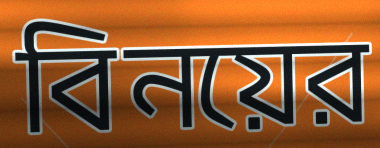
বিনয়ের